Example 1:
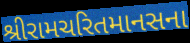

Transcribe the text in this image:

શ્રીરામચરિતમાનસના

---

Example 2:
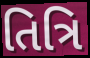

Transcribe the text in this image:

તિત્રિ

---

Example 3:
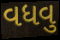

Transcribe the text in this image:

વધવુ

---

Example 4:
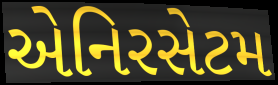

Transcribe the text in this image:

એનિરસેટમ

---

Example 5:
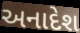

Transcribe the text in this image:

અનાદેશ